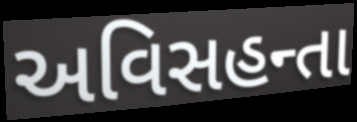
અવિસહન્તા